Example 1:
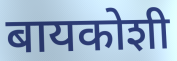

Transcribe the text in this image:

बायकोशी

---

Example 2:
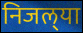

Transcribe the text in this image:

निजल्या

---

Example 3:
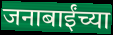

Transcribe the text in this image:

जनाबाईंच्या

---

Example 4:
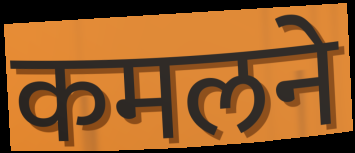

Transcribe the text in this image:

कमलने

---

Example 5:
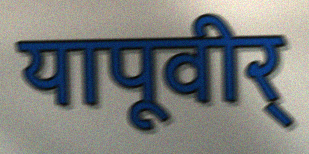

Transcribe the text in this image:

यापूवीर्